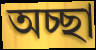
অচ্ছা